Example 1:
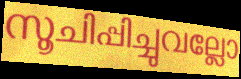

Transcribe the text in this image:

സൂചിപ്പിച്ചുവല്ലോ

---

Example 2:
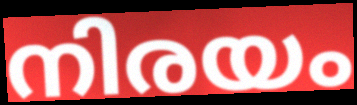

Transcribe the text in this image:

നിരയം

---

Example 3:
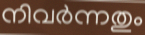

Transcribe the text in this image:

നിവർന്നതും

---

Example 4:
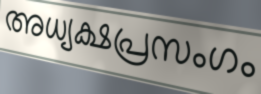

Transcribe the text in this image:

അധ്യക്ഷപ്രസംഗം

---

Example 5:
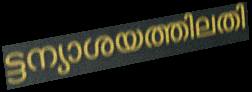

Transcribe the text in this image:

ട്ടന്യാശയത്തിലതി